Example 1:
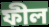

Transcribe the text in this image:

ফীল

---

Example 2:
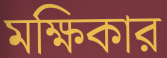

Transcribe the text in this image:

মক্ষিকার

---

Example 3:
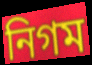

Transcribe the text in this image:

নিগম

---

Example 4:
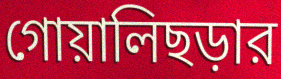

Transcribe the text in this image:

গোয়ালিছড়ার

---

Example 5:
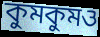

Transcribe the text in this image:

কুমকুমও